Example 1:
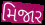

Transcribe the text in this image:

મિજાર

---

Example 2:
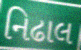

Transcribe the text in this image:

નિઢાલ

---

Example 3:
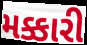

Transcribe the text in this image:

મક્કારી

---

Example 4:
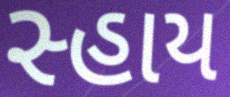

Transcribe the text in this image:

સ્હાય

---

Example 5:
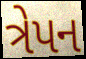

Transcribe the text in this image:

ત્રેપન